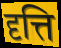
दृत्ति